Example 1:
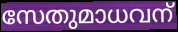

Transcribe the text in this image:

സേതുമാധവന്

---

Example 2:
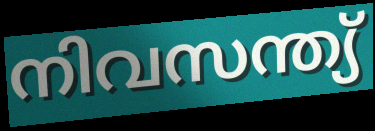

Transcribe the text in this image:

നിവസന്ത്യ്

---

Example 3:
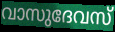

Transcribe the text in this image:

വാസുദേവസ്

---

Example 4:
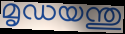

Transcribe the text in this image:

മൃഡയന്തു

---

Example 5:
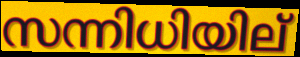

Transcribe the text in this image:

സന്നിധിയില്